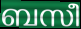
ബസീ